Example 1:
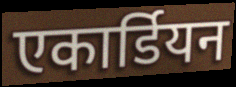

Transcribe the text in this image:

एकार्डियन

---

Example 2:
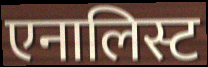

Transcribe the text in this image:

एनालिस्ट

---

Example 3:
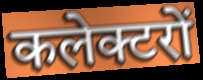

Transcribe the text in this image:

कलेक्टरों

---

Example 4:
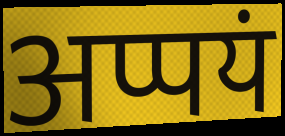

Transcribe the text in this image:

अप्पयं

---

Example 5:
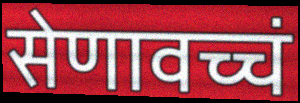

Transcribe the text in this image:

सेणावच्चं